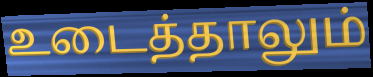
உடைத்தாலும்